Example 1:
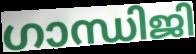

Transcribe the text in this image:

ഗാന്ധിജി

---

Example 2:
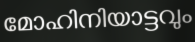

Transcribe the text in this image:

മോഹിനിയാട്ടവും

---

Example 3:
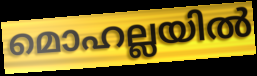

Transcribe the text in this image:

മൊഹല്ലയിൽ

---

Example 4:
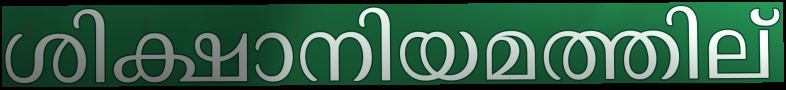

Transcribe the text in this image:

ശിക്ഷാനിയമത്തില്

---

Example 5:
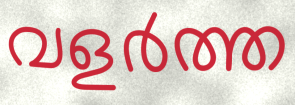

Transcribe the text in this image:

വളർത്ത